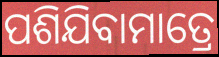
ପଶିଯିବାମାତ୍ରେ